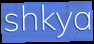
shkya